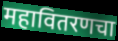
महावितरणचा